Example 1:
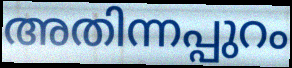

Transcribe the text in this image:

അതിന്നപ്പുറം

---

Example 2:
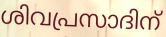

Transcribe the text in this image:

ശിവപ്രസാദിന്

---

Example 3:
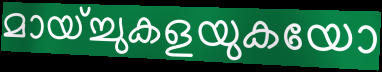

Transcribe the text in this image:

മായ്ച്ചുകളയുകയോ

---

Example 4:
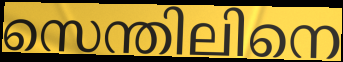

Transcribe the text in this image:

സെന്തിലിനെ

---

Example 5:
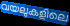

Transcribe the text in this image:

വയലുകളിലെ